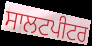
ਸਾਲਟਪੀਟਰ